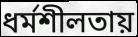
ধর্মশীলতায়